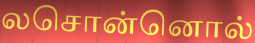
லசொன்னொல்